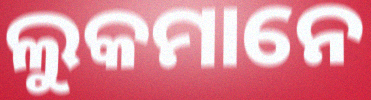
ଲୁକମାନେ